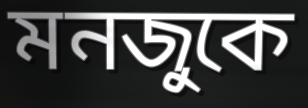
মনজুকে